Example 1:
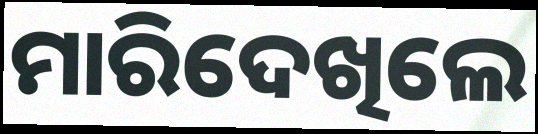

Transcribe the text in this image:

ମାରିଦେଖିଲେ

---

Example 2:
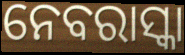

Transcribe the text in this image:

ନେବରାସ୍କା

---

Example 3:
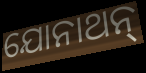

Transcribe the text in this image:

ଯୋନାଥନ୍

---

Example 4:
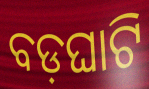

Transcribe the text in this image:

ବଡ଼ଘାଟି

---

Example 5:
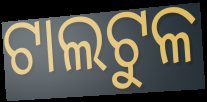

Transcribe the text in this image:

ଟାଲଟୁଳ